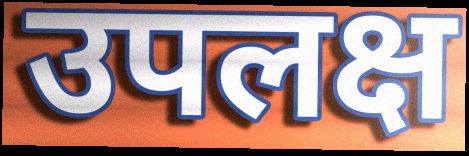
उपलक्ष